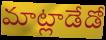
మాట్లాడేడో